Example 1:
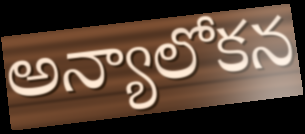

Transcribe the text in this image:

అన్యాలోకన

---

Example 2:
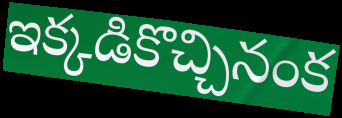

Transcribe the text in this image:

ఇక్కడికొచ్చినంక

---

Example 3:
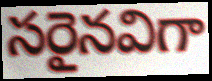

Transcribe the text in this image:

సరైనవిగా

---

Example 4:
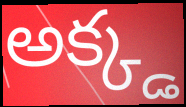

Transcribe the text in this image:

అక్క్డ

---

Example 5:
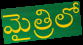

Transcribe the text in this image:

మైత్రిలో